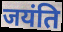
जयंति